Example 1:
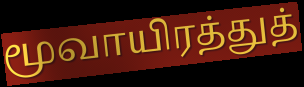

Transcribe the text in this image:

மூவாயிரத்துத்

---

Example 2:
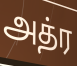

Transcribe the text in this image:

அத்ர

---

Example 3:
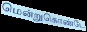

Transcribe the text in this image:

மென்றுகொண்டே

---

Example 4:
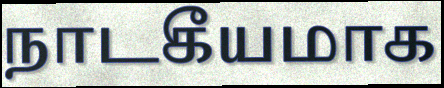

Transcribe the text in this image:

நாடகீயமாக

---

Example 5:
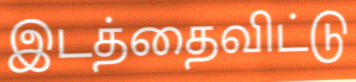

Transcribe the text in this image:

இடத்தைவிட்டு